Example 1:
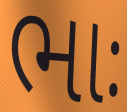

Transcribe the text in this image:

ભાઃ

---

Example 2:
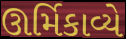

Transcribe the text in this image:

ઊર્મિકાવ્યે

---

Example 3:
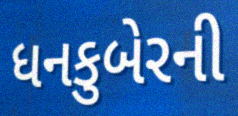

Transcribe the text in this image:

ધનકુબેરની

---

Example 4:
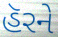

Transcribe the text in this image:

હૅરને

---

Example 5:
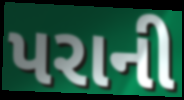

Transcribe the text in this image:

પરાની